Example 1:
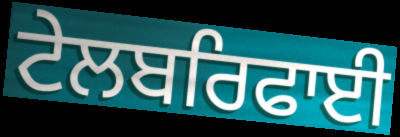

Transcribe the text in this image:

ਟੇਲਬਰਿਫਾਈ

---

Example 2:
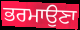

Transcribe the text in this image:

ਭਰਮਾਉਣਾ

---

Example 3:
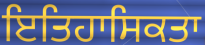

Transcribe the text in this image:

ਇਤਿਹਾਸਿਕਤਾ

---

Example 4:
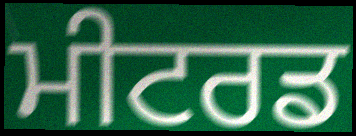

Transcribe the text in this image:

ਮੀਟਰਡ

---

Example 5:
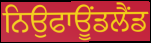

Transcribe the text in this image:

ਨਿਉਫਾਊਂਡਲੈਂਡ